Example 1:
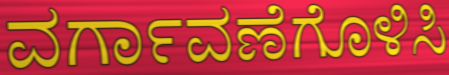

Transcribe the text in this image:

ವರ್ಗಾವಣೆಗೊಳಿಸಿ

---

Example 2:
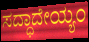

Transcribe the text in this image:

ಸದ್ಧಾದೇಯ್ಯಂ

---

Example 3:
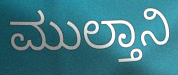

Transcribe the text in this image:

ಮುಲ್ತಾನಿ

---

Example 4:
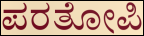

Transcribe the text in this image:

ಪರತೋಪಿ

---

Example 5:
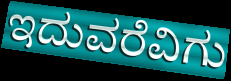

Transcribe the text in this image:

ಇದುವರೆವಿಗು